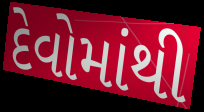
દેવોમાંથી